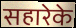
सहारेके